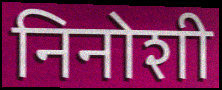
निनोशी